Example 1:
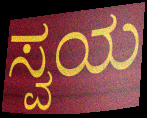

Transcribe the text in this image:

ಸ್ವಯ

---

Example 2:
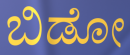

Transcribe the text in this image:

ಬಿಡೋ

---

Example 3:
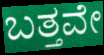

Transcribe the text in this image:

ಬತ್ತವೇ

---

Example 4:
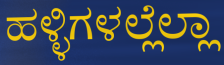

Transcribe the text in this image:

ಹಳ್ಳಿಗಳಲ್ಲೆಲ್ಲಾ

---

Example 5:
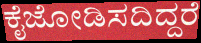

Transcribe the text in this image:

ಕೈಜೋಡಿಸದಿದ್ದರೆ